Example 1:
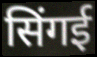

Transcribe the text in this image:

सिंगई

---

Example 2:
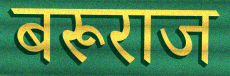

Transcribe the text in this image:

बरूराज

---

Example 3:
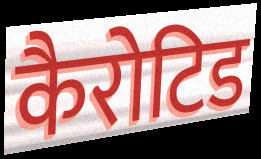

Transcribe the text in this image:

कैरोटिड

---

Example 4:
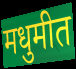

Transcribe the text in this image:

मधुमीत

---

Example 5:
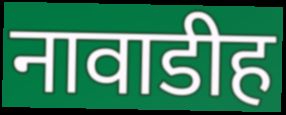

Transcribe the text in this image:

नावाडीह